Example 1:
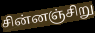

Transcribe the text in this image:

சின்னஞ்சிறு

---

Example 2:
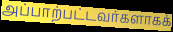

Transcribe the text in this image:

அப்பாற்பட்டவர்களாகக்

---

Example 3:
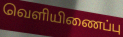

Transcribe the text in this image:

வெளியிணைப்பு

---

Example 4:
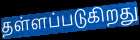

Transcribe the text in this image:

தள்ளப்படுகிறது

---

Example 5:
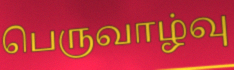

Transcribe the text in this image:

பெருவாழ்வு